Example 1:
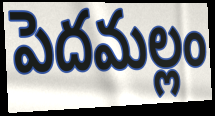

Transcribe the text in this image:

పెదమల్లం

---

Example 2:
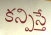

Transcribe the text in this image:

కన్పిస్తే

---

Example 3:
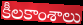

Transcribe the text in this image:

కీలకాంశాలు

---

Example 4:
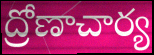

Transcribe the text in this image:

ద్రోణాచార్య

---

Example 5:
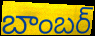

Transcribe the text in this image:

బాంబర్